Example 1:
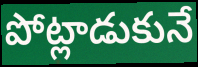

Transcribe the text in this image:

పోట్లాడుకునే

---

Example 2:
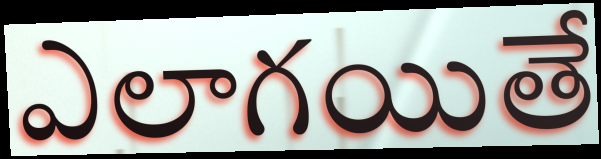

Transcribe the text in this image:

ఎలాగయితే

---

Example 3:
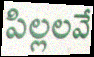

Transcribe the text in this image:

పిల్లలవే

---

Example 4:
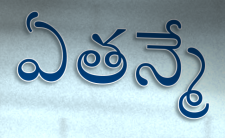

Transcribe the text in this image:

ఏతన్మే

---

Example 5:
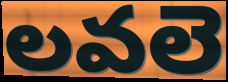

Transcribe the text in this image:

లవలె